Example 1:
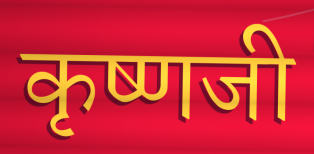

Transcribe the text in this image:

कृष्णजी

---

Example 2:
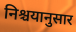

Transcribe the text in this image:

निश्चयानुसार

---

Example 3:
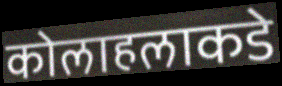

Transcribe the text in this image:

कोलाहलाकडे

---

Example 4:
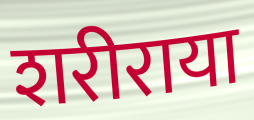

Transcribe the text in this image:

शरीराया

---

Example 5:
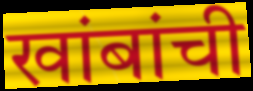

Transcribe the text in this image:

खांबांची